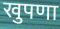
खुपणा